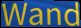
Wand